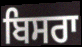
ਬਿਸਰਾ